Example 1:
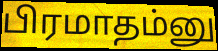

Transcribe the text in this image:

பிரமாதம்னு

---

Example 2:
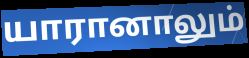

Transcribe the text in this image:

யாரானாலும்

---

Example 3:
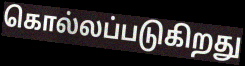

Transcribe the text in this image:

கொல்லப்படுகிறது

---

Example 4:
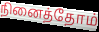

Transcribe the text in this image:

நினைத்தோம்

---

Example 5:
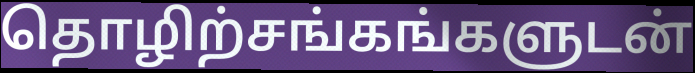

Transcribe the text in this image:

தொழிற்சங்கங்களுடன்